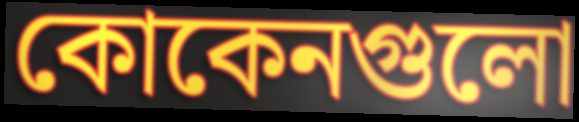
কোকেনগুলো